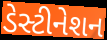
ડેસ્ટીનેશન